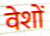
वेशों